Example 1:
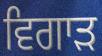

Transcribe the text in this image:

ਵਿਗਾਡ਼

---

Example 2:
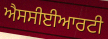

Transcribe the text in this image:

ਐਸਸੀਈਆਰਟੀ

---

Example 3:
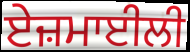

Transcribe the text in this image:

ਏਜ਼ਮਾਈਲੀ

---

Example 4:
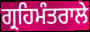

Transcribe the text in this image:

ਗ੍ਰਹਿਮੰਤਰਾਲੇ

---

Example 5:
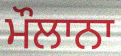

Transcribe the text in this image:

ਮੌਲਾਨਾ